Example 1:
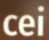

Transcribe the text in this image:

cei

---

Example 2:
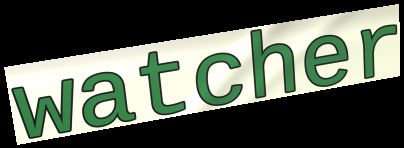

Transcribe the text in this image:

watcher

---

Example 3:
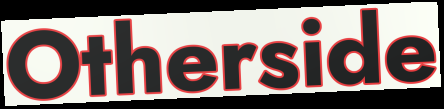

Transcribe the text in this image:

Otherside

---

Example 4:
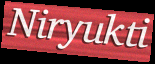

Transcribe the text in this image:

Niryukti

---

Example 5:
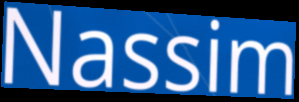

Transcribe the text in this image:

Nassim